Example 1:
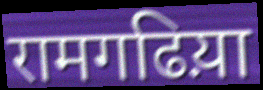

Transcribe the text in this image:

रामगढिय़ा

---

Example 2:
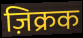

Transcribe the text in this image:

ज़िक्रक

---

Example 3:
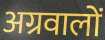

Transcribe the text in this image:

अग्रवालों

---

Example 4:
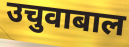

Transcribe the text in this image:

उचुवाबाल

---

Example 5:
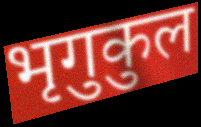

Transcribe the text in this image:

भृगुकुल